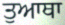
ਤੁਆਥਾ